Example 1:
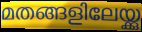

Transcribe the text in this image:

മതങ്ങളിലേയ്ക്കു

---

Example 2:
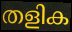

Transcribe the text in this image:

തളിക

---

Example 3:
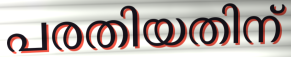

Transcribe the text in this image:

പരതിയതിന്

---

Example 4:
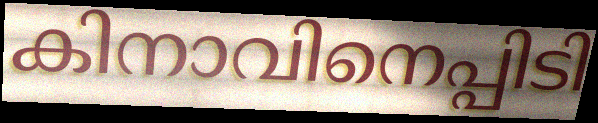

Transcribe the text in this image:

കിനാവിനെപ്പിടി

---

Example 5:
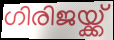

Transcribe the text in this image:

ഗിരിജയ്ക്ക്